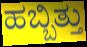
ಹಬ್ಬಿತ್ತು